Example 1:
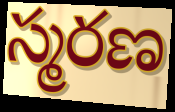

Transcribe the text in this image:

స్మరణ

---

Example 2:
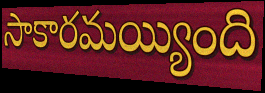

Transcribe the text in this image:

సాకారమయ్యింది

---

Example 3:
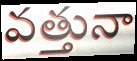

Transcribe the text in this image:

వత్తునా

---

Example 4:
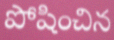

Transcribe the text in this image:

పోషించిన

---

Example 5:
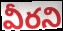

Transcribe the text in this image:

వీరని